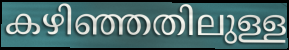
കഴിഞ്ഞതിലുള്ള